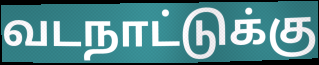
வடநாட்டுக்கு